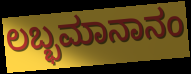
ಲಬ್ಭಮಾನಾನಂ